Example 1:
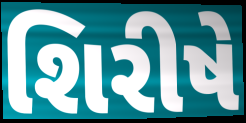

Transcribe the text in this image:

શિરીષે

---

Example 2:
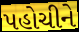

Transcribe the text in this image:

પહોચીને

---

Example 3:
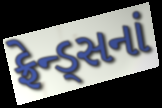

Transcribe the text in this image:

ફ્રેન્ડ્સનાં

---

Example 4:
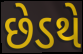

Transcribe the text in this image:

છેડથે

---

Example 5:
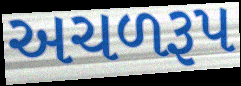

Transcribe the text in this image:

અચળરૂપ